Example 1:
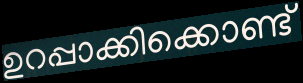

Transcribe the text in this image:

ഉറപ്പാക്കിക്കൊണ്ട്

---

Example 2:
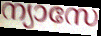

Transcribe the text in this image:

ന്യാസേ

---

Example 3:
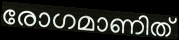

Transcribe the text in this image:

രോഗമാണിത്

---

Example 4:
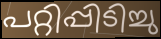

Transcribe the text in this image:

പറ്റിപ്പിടിച്ചു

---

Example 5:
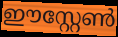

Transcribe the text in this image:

ഈസ്റ്റേൺ